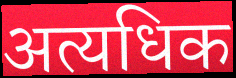
अत्यधिक